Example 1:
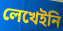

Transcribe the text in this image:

লেখেইনি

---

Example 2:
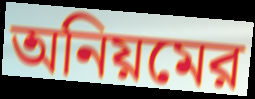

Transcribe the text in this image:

অনিয়মের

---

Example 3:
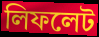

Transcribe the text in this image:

লিফলেট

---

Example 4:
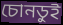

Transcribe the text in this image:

চোনডুই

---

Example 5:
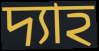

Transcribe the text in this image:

দ্যাহ